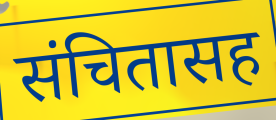
संचितासह